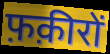
फ़क़ीरों